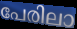
പേരിലാ